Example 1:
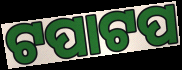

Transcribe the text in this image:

ଟପାଟପ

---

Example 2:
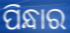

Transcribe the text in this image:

ପିନ୍ଧାର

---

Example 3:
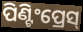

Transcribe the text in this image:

ପିଣ୍ଟିଂପ୍ରେସ୍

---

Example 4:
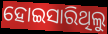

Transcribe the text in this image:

ହୋଇସାରିଥିଲୁ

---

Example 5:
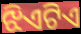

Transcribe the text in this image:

ଝିଏଟିଏ